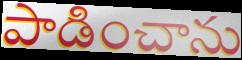
పాడించాను